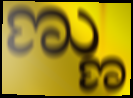
ಣ್ಣು